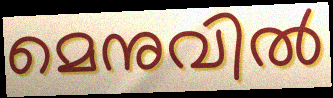
മെനുവിൽ